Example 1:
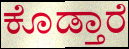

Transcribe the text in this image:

ಕೊಡ್ತಾರೆ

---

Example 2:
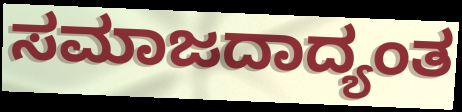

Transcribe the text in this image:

ಸಮಾಜದಾದ್ಯಂತ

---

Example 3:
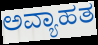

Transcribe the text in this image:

ಅವ್ಯಾಹತ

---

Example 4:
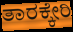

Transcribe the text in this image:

ತಾರಕ್ಕೇರಿ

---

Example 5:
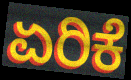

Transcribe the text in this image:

ಏರಿಕೆ